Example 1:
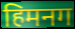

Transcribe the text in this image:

हिमनग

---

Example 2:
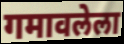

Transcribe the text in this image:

गमावलेला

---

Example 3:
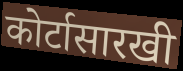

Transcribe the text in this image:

कोर्टासारखी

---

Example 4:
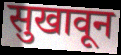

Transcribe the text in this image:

सुखावून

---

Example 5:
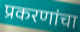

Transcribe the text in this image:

प्रकरणांचा